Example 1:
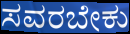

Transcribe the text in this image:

ಸವರಬೇಕು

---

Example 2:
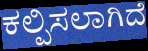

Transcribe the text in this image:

ಕಲ್ಪಿಸಲಾಗಿದೆ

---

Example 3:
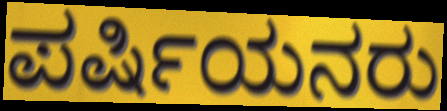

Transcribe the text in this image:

ಪರ್ಷಿಯನರು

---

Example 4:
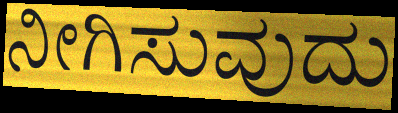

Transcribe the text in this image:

ನೀಗಿಸುವುದು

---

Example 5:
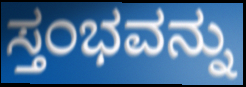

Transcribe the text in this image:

ಸ್ತಂಭವನ್ನು